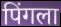
पिंगला